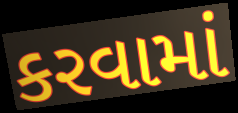
કરવામાં